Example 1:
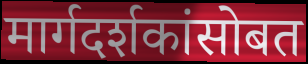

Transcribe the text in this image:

मार्गदर्शकांसोबत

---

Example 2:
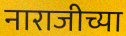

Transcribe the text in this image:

नाराजीच्या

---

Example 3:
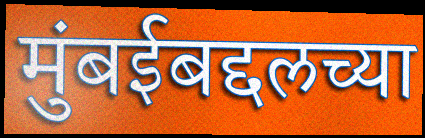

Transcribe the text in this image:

मुंबईबद्दलच्या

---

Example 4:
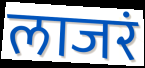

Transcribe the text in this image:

लाजरं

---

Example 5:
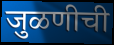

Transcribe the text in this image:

जुळणीची